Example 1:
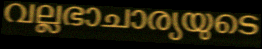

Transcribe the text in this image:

വല്ലഭാചാര്യയുടെ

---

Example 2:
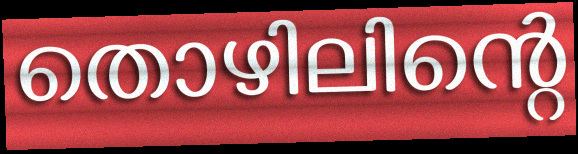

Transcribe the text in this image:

തൊഴിലിന്റെ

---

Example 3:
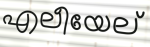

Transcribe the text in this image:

എലീയേല്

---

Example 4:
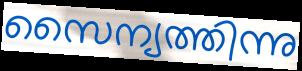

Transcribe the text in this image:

സൈന്യത്തിന്നു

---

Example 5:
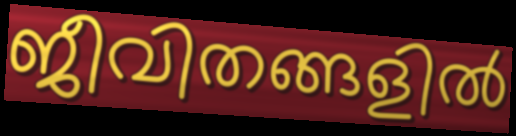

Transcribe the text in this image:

ജീവിതങ്ങളിൽ